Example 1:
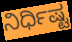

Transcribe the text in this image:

ನಿರ್ಧಿಷ್ಟ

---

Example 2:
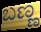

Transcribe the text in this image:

ಬಣ್ಣ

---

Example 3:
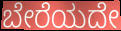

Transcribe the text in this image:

ಬೇರೆಯದೇ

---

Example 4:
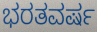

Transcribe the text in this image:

ಭರತವರ್ಷ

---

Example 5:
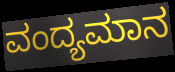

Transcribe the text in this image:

ವಂದ್ಯಮಾನ